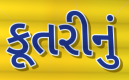
કૂતરીનું